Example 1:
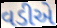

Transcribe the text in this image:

વડીએ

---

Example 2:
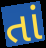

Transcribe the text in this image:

તાં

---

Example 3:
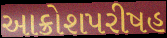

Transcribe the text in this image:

આક્રોશપરીષહ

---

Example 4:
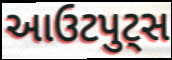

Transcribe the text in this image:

આઉટપુટ્સ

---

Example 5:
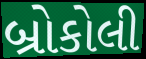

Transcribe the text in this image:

બ્રોકોલી